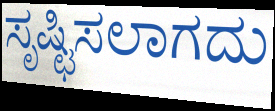
ಸೃಷ್ಟಿಸಲಾಗದು